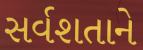
સર્વશતાને